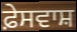
ਫ਼ੇਸਵਾਸ਼